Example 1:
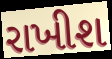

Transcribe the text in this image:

રાખીશ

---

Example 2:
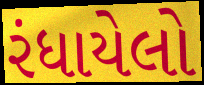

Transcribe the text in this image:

રંધાયેલો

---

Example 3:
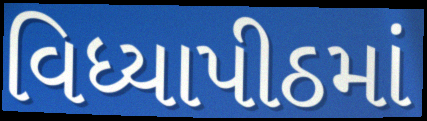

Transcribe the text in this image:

વિધ્યાપીઠમાં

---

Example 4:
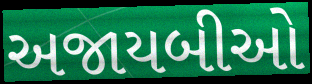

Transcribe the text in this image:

અજાયબીઓ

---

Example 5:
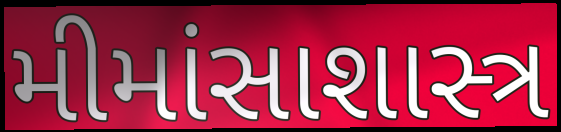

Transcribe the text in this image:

મીમાંસાશાસ્ત્ર